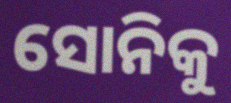
ସୋନିକୁ